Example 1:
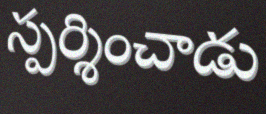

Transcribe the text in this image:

స్పర్శించాడు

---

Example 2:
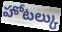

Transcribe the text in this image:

హోటల్కు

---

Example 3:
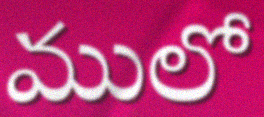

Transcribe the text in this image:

ములో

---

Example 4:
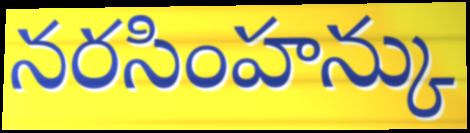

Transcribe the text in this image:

నరసింహన్కు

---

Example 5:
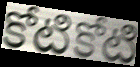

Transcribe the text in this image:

కోటికోటి